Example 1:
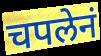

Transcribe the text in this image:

चपलेनं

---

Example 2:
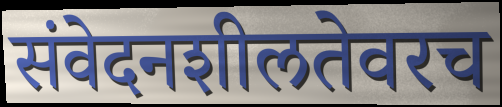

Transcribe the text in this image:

संवेदनशीलतेवरच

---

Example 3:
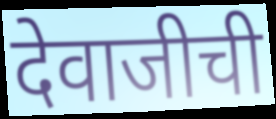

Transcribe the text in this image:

देवाजीची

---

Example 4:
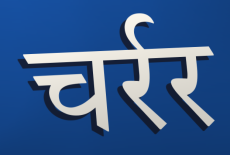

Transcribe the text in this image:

चर्रर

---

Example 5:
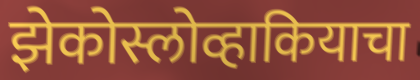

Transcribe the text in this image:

झेकोस्लोव्हाकियाचा